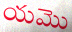
యమొ